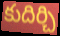
కుదిర్చి